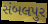
સંબલપુર